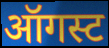
ऑगस्ट